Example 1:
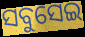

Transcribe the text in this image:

ସବୁସେଇ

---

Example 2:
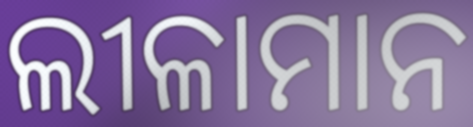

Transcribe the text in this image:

ଲୀଳାମାନ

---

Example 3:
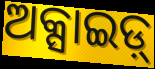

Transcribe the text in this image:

ଅକ୍ସାଇଡ଼୍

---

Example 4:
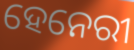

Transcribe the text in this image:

ହେନେରୀ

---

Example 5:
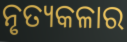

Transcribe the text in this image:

ନୃତ୍ୟକଳାର